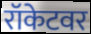
रॉकेटवर